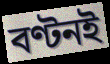
বণ্টনই